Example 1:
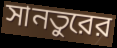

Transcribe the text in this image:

সানতুরের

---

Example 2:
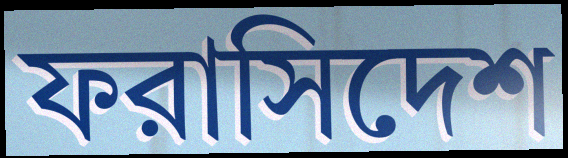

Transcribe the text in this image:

ফরাসিদেশ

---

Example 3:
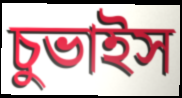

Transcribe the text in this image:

চুভাইস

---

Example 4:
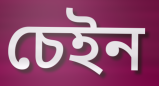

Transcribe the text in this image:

চেইন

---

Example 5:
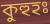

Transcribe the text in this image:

কুহুহঃ